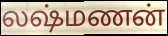
லஷ்மணன்